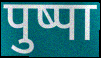
पुष्पा